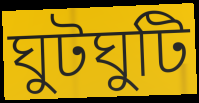
ঘুটঘুটি